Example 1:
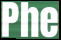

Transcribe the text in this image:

Phe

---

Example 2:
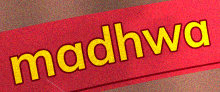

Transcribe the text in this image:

madhwa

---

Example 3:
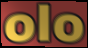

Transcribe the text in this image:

olo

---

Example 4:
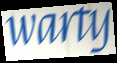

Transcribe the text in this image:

warty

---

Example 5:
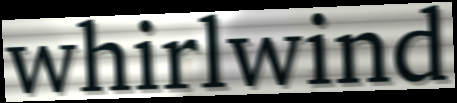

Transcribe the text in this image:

whirlwind